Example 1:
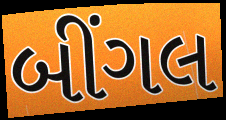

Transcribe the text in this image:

બીંગલ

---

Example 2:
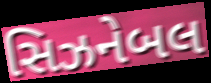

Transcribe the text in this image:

સિઝનેબલ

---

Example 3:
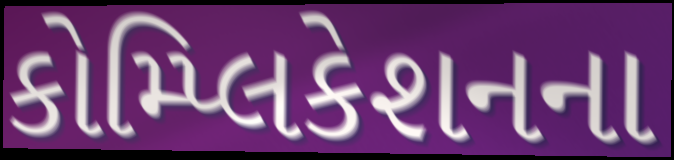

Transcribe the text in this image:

કોમ્પ્લિકેશનના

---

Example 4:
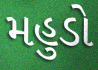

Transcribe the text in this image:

મહુડો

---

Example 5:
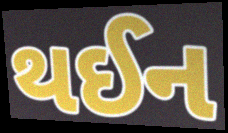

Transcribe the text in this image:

થઈન